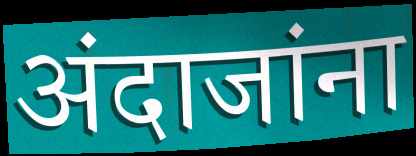
अंदाजांना